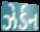
ઝેર્ડન